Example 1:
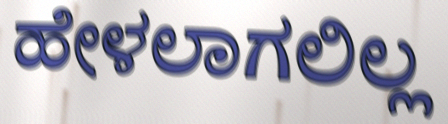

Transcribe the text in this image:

ಹೇಳಲಾಗಲಿಲ್ಲ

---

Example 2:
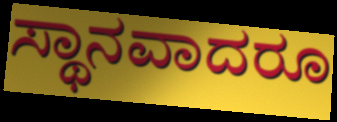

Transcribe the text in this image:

ಸ್ಥಾನವಾದರೂ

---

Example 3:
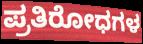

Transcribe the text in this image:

ಪ್ರತಿರೋಧಗಳ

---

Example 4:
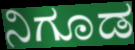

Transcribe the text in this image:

ನಿಗೂಡ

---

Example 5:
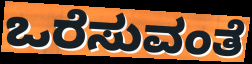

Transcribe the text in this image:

ಒರೆಸುವಂತೆ